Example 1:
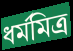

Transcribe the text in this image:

ধর্মমিত্র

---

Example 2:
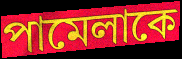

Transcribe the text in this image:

পামেলাকে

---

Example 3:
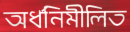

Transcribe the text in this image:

অর্ধনিমীলিত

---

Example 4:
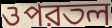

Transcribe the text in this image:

ওপরতল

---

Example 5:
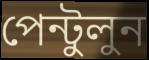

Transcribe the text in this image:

পেন্টুলুন